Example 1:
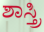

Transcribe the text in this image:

ಶಾಸ್ತ್ರಿ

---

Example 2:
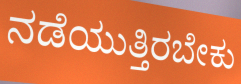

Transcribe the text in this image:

ನಡೆಯುತ್ತಿರಬೇಕು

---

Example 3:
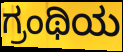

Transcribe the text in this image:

ಗ್ರಂಥಿಯ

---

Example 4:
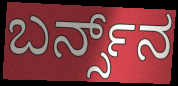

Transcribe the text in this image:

ಬರ್ನ್ಸ್‌ನ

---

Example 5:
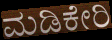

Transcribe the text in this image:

ಮಡಿಕೇರಿ